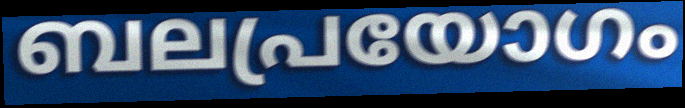
ബലപ്രയോഗം